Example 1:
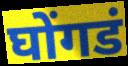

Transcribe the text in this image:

घोंगडं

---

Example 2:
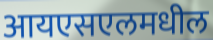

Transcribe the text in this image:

आयएसएलमधील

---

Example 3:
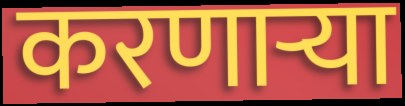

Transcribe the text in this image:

करणाऱ्या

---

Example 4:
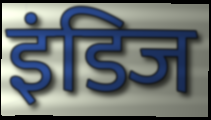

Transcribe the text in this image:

इंडिज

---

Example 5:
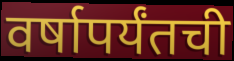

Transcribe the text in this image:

वर्षापर्यंतची